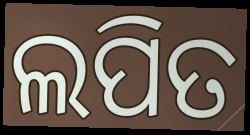
ଲପିତ